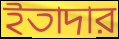
ইতাদার